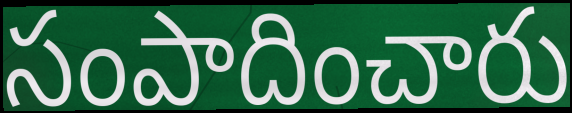
సంపాదించారు